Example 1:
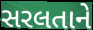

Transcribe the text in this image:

સરલતાને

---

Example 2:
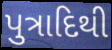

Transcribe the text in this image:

પુત્રાદિથી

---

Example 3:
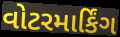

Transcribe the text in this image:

વોટરમાર્કિંગ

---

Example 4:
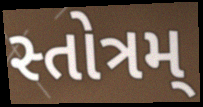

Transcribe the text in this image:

સ્તોત્રમ્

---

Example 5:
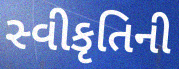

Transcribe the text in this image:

સ્વીકૃતિની